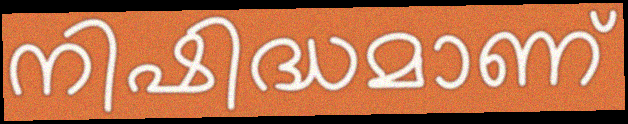
നിഷിദ്ധമാണ്